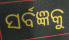
ସର୍ବଜ୍ଞକୁ